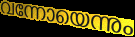
വന്നോയെന്നും